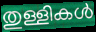
തുള്ളികൾ